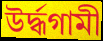
উৰ্দ্ধগামী